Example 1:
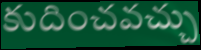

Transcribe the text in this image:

కుదించవచ్చు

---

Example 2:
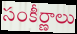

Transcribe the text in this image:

సంకీర్ణాలు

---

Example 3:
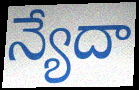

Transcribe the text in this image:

న్యేదా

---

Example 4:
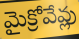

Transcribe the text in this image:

మైక్రోవేవ్లు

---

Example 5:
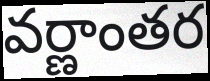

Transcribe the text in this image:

వర్ణాంతర